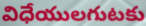
విధేయులగుటకు